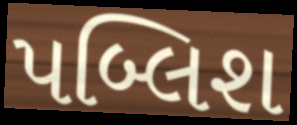
પબ્લિશ